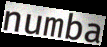
numba